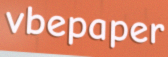
vbepaper